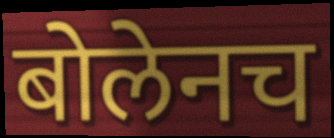
बोलेनच